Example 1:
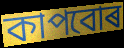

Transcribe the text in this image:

কাপবোৰ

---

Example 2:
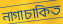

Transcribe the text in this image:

নাগাচাকিত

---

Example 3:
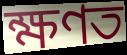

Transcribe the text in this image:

ক্ষণত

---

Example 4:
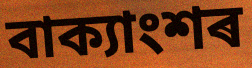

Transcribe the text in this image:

বাক্যাংশৰ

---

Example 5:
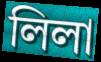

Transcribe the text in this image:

লিলা